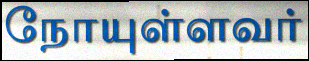
நோயுள்ளவர்